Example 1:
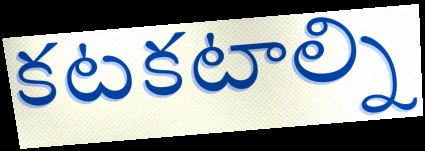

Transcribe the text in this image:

కటకటాల్ని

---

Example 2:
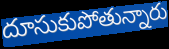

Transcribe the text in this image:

దూసుకుపోతున్నారు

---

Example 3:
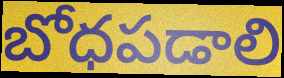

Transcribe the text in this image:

బోధపడాలి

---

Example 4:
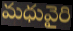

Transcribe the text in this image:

మధువైరి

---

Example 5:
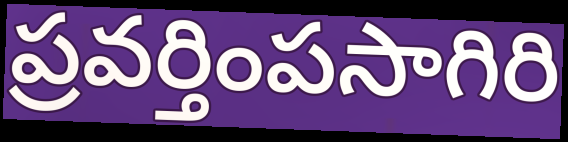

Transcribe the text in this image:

ప్రవర్తింపసాగిరి